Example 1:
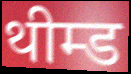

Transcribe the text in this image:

थीम्ड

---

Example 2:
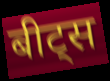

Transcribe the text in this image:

बीट्स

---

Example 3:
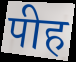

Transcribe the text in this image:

पीह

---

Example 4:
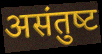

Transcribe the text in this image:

असंतुष्‍ट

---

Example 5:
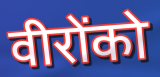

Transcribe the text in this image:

वीरोंको